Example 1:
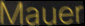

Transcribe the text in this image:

Mauer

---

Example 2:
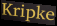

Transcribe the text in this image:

Kripke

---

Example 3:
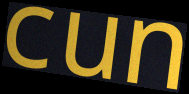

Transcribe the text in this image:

cun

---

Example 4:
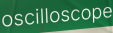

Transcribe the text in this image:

oscilloscope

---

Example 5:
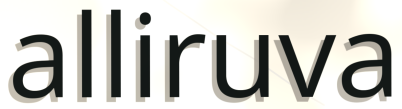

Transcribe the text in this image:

alliruva